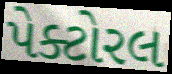
પેક્ટોરલ